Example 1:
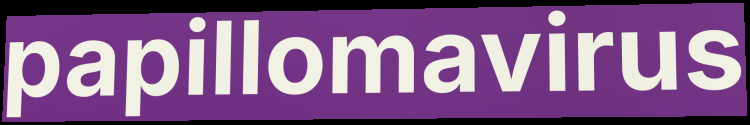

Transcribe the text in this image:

papillomavirus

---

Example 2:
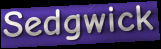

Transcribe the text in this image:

Sedgwick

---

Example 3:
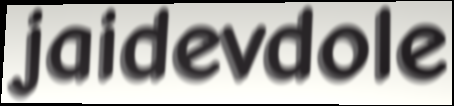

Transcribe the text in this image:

jaidevdole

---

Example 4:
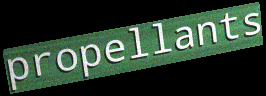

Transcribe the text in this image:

propellants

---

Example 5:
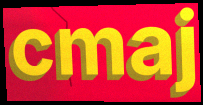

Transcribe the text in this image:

cmaj